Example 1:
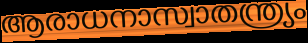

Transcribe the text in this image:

ആരാധനാസ്വാതന്ത്ര്യം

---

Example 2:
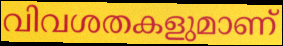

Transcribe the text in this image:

വിവശതകളുമാണ്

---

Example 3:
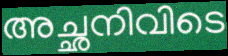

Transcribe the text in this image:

അച്ഛനിവിടെ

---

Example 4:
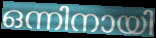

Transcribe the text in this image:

ഒന്നിനായി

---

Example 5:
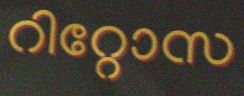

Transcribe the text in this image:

റിറ്റോസ